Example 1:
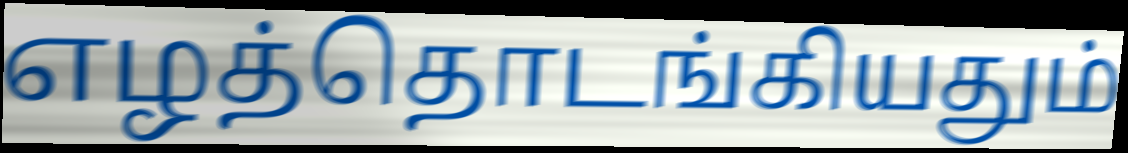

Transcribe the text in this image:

எழத்தொடங்கியதும்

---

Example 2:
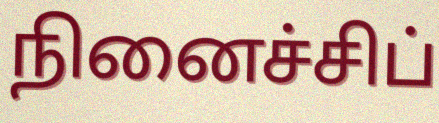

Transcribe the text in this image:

நினைச்சிப்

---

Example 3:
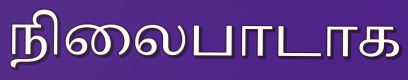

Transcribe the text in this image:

நிலைபாடாக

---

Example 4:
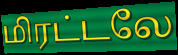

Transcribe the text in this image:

மிரட்டலே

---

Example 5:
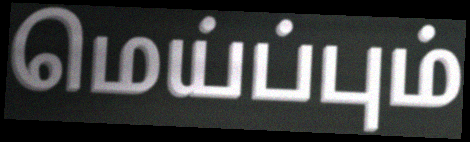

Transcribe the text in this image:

மெய்ப்பும்